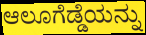
ಆಲೂಗೆಡ್ಡೆಯನ್ನು